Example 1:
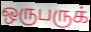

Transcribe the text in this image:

ஒருபருக்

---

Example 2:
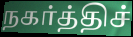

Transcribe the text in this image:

நகர்த்திச்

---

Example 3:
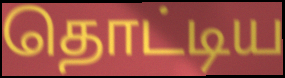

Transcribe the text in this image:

தொட்டிய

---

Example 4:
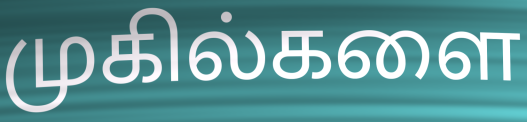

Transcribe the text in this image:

முகில்களை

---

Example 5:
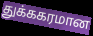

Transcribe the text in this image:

துக்ககரமான